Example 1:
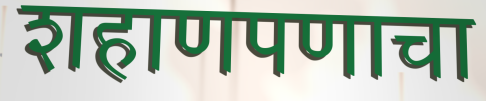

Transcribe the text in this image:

शहाणपणाचा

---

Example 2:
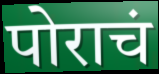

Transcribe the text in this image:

पोराचं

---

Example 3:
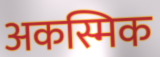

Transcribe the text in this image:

अकस्मिक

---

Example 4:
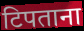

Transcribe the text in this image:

टिपताना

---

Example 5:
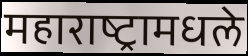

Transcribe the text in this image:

महाराष्ट्रामधले